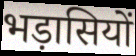
भड़ासियों